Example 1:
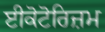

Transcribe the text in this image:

ਈਕੋਟੋਰਿਜ਼ਮ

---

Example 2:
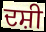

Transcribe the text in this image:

ਦਸ਼ੀ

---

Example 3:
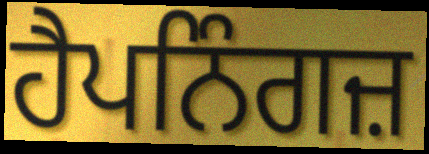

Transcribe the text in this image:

ਹੈਪਨਿੰਗਜ਼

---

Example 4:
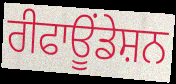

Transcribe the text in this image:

ਰੀਫਾਊਂਡੇਸ਼ਨ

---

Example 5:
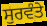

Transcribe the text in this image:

ਸੁਰਵੰਤੇ